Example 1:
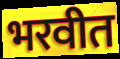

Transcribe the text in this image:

भरवीत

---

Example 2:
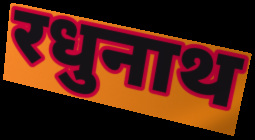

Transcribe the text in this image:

रधुनाथ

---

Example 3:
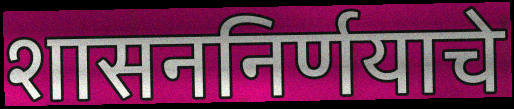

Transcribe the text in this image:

शासननिर्णयाचे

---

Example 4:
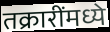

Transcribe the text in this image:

तक्रारींमध्ये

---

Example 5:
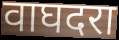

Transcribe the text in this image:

वाघदरा